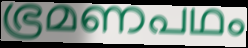
ഭ്രമണപഥം